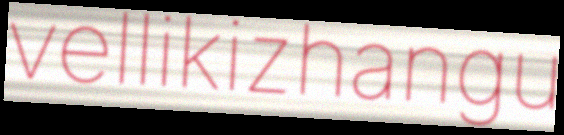
vellikizhangu